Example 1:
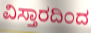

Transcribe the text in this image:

ವಿಸ್ತಾರದಿಂದ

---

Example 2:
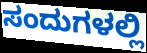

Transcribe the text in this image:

ಸಂದುಗಳಲ್ಲಿ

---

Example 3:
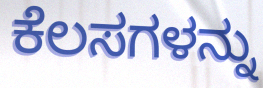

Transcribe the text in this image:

ಕೆಲಸಗಳನ್ನು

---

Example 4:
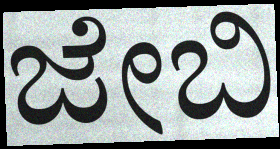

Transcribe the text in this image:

ಜೇಬಿ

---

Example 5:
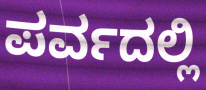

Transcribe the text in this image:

ಪರ್ವದಲ್ಲಿ